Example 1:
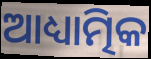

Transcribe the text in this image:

ଆଧ୍ୟାତ୍ମିକ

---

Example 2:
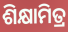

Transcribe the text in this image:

ଶିକ୍ଷାମିତ୍ର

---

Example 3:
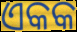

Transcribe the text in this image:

ଏକକ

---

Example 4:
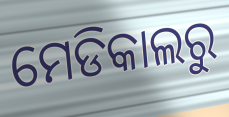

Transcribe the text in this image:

ମେଡିକାଲରୁ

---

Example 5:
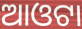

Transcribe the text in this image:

ଆଓଟା